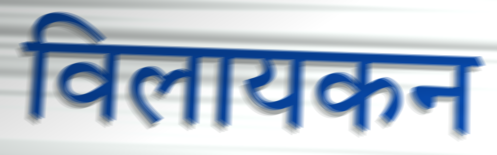
विलायकन